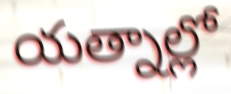
యత్నాల్లో